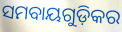
ସମବାୟଗୁଡ଼ିକର